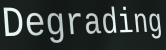
Degrading